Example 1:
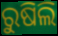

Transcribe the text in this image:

ରୁଷିଲି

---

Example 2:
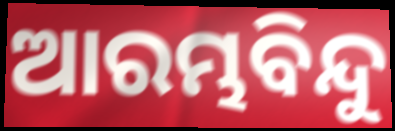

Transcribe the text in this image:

ଆରମ୍ଭବିନ୍ଦୁ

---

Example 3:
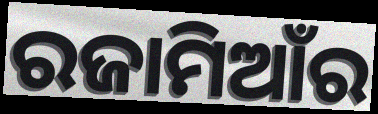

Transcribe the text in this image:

ରଜାମିଆଁର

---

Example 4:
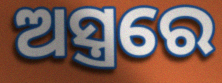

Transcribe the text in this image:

ଅସ୍ତ୍ରରେ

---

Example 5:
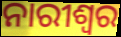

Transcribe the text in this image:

ନାରୀଶ୍ବର